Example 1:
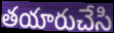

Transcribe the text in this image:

తయారుచేసి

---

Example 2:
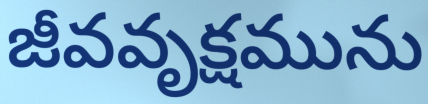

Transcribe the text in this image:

జీవవృక్షమును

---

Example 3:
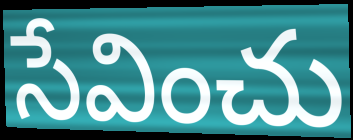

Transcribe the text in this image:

సేవించు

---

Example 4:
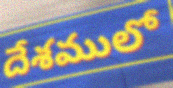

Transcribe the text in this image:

దేశములో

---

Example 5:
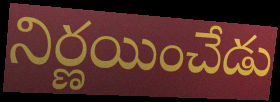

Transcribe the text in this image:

నిర్ణయించేడు